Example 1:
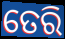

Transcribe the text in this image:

ତେରି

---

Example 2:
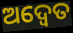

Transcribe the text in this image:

ଅଦ୍ଵେତ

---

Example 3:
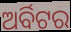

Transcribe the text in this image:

ଅର୍ବିଟର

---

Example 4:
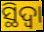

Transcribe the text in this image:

ସ୍ଥିଦ୍ଵା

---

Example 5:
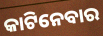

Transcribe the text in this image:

କାଟିନେବାର